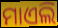
ମାଏଲି